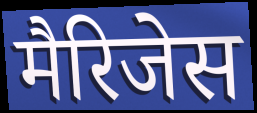
मैरिजेस